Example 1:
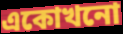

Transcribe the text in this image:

একোখনো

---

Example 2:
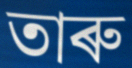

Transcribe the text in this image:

তাৰু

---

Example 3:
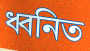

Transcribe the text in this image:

ধ্বনিত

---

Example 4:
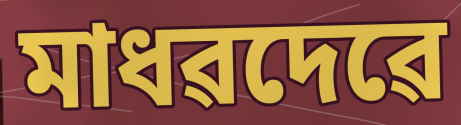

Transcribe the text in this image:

মাধৱদেৱে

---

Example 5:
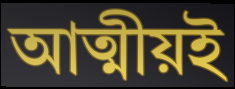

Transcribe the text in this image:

আত্মীয়ই